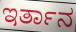
ಇರ್ತಾನ